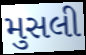
મુસલી